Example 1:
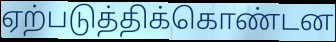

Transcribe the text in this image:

ஏற்படுத்திக்கொண்டன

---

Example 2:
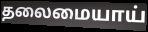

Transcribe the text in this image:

தலைமையாய்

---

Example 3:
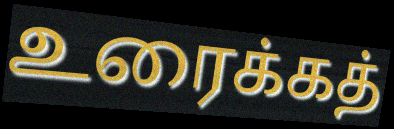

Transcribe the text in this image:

உரைக்கத்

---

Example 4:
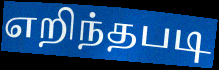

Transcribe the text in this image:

எறிந்தபடி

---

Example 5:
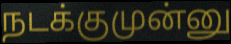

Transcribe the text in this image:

நடக்குமுன்னு